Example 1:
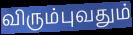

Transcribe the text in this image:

விரும்புவதும்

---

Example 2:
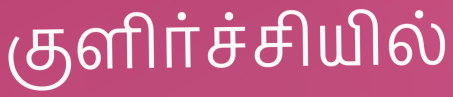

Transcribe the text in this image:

குளிர்ச்சியில்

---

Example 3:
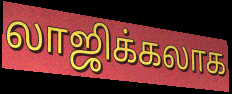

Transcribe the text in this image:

லாஜிக்கலாக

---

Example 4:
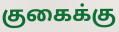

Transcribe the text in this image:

குகைக்கு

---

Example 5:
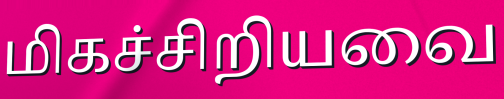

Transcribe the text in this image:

மிகச்சிறியவை